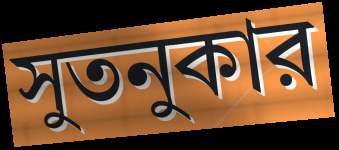
সুতনুকার